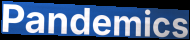
Pandemics